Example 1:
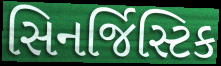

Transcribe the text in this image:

સિનર્જિસ્ટિક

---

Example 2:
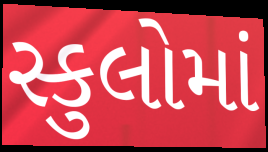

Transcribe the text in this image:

સ્કુલોમાં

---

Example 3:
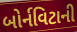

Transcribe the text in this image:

બોર્નવિટાની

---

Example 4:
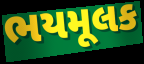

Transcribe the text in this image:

ભયમૂલક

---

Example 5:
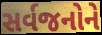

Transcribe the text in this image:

સર્વજનોને